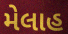
મેલાહ